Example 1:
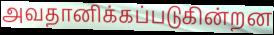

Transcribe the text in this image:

அவதானிக்கப்படுகின்றன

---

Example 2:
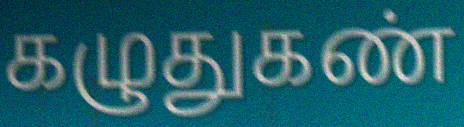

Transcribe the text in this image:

கழுதுகண்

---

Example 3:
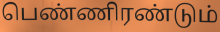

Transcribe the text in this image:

பெண்ணிரண்டும்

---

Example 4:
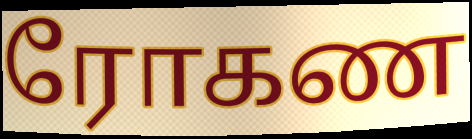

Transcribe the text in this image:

ரோகண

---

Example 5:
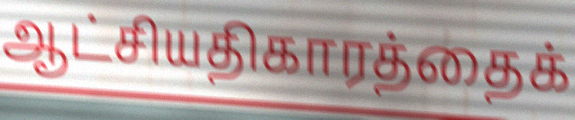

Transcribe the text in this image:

ஆட்சியதிகாரத்தைக்